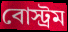
বোস্ট্রম